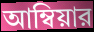
আম্বিয়ার